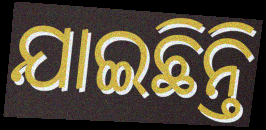
ଯାଇଛିନ୍ତି